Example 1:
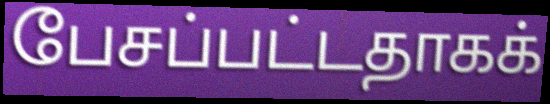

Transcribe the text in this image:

பேசப்பட்டதாகக்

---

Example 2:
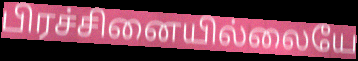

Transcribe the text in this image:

பிரச்சினையில்லையே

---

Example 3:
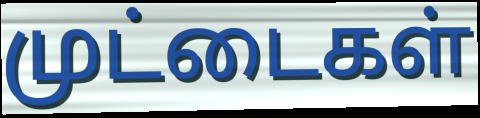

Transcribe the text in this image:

முட்டைகள்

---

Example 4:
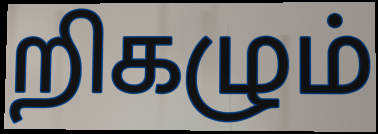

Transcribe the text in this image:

றிகழும்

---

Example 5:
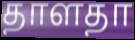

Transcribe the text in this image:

தாளதா